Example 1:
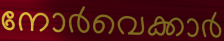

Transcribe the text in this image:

നോർവെക്കാർ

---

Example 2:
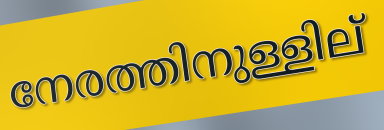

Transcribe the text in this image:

നേരത്തിനുള്ളില്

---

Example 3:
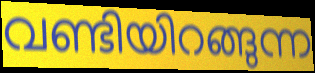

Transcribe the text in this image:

വണ്ടിയിറങ്ങുന്ന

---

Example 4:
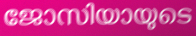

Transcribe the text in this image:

ജോസിയായുടെ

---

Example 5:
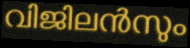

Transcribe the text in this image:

വിജിലൻസും